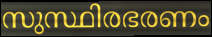
സുസ്ഥിരഭരണം